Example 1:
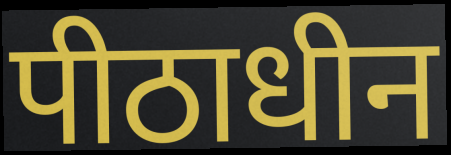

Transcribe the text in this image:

पीठाधीन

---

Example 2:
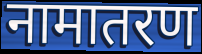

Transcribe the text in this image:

नामातरण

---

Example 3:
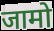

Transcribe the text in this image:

जामो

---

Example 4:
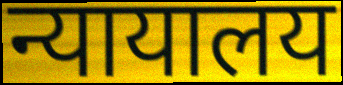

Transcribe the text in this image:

न्यायालय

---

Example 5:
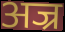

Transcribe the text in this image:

अज्र